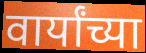
वार्यांच्या